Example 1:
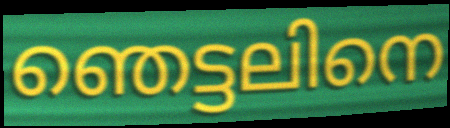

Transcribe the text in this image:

ഞെട്ടലിനെ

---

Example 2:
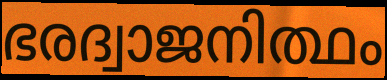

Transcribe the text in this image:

ഭരദ്വാജനിത്ഥം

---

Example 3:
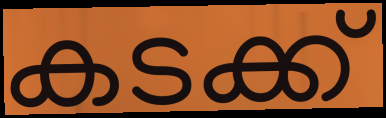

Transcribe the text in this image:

കടക്ക്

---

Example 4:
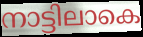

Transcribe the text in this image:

നാട്ടിലാകെ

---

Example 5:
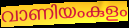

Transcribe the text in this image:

വാണിയംകുളം